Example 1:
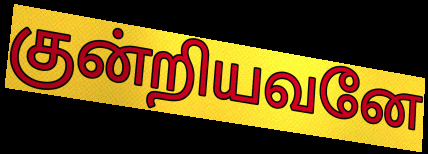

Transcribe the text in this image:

குன்றியவனே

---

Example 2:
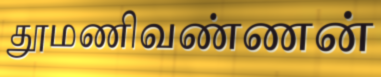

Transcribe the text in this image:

தூமணிவண்ணன்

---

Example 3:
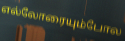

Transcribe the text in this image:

எல்லோரையும்போல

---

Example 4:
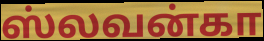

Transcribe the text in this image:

ஸ்லவன்கா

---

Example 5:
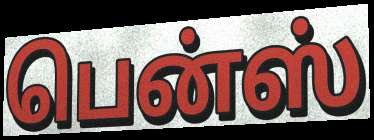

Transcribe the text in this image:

பென்ஸ்